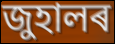
জুহালৰ